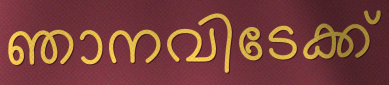
ഞാനവിടേക്ക്